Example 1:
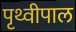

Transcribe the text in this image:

पृथ्वीपाल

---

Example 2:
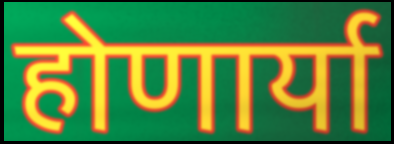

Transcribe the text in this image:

होणार्या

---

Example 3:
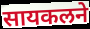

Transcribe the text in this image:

सायकलने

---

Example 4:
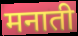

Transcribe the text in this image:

मनाती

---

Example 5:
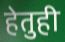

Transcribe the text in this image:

हेतुही